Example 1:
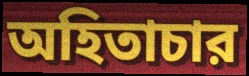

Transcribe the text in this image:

অহিতাচার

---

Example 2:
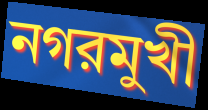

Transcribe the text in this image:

নগরমুখী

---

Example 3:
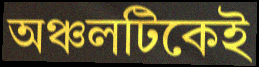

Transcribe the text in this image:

অঞ্চলটিকেই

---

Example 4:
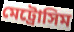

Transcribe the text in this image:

মেট্রোসিম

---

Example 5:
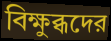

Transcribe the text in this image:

বিক্ষুব্ধদের